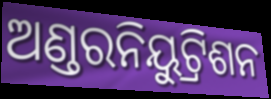
ଅଣ୍ଡରନିୟୁଟ୍ରିଶନ